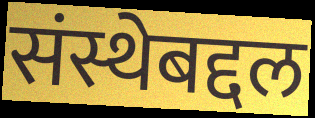
संस्थेबद्दल